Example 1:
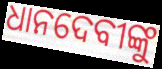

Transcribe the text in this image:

ଧାନଦେବୀଙ୍କୁ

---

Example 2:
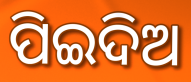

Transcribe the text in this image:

ପିଇଦିଅ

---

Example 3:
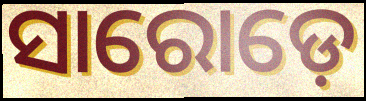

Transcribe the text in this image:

ସାରୋଡ଼େ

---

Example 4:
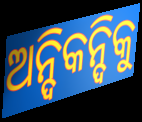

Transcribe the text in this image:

ଅନ୍ଦିକନ୍ଦିକୁ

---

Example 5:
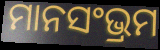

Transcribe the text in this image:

ମାନସଂଭ୍ରମ